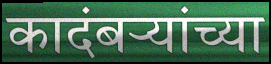
कादंबर्‍यांच्या